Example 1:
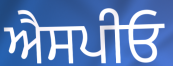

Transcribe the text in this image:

ਐਸਪੀਓ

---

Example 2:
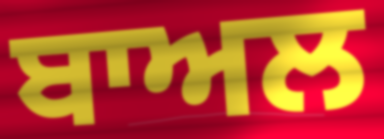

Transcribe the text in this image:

ਬਾਅਲ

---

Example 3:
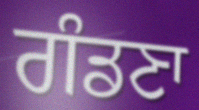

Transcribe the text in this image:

ਗੰਡਣਾ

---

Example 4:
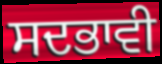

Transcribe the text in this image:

ਸਦਭਾਵੀ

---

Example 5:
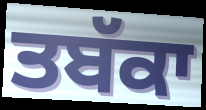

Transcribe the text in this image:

ਤਬੱਕਾ